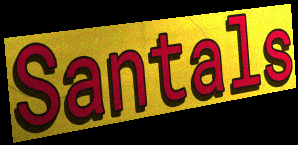
Santals